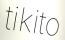
tikito